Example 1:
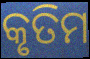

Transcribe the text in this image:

କୃତିମ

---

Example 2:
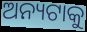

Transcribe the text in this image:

ଅନ୍ୟଟାକୁ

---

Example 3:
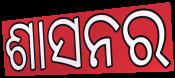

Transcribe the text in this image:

ଶାସନର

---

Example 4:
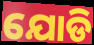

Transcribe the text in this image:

ଯୋଡି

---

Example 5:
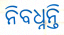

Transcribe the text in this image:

ନିବଧ୍ନନ୍ତି